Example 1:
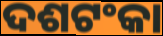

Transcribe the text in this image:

ଦଶଟଂକା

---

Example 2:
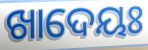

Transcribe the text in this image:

ଖାଦେୟଃ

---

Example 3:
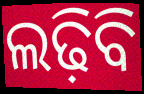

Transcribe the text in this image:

ଲଢ଼ିବି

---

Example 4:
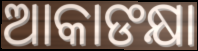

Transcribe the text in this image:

ଆକାଙକ୍ଷା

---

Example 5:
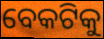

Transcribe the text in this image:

ବେକଟିକୁ